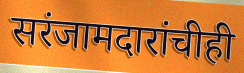
सरंजामदारांचीही